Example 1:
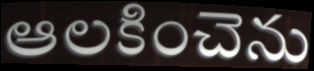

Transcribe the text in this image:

ఆలకించెను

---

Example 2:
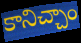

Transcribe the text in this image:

కానిచ్చాం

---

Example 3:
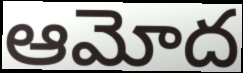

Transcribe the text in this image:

ఆమోద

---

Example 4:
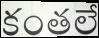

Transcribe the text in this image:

కంతలే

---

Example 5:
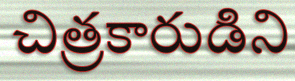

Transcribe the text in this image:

చిత్రకారుడిని